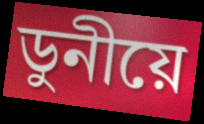
ডুনীয়ে